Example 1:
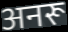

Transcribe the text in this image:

अनरू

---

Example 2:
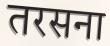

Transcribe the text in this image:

तरसना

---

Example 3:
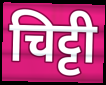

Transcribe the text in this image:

चिट्टी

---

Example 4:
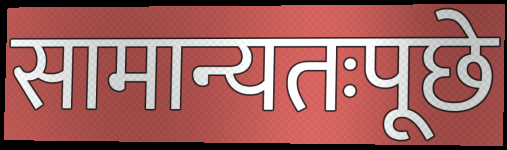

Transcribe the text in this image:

सामान्यतःपूछे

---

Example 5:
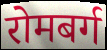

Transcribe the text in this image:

रोमबर्ग